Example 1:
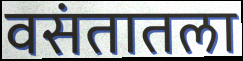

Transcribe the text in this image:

वसंतातला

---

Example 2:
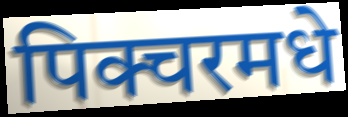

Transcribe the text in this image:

पिक्चरमधे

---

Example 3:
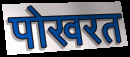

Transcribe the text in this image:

पोखरत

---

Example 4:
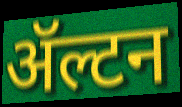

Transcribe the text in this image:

ॲल्टन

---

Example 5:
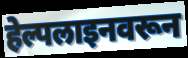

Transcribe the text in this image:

हेल्पलाइनवरून